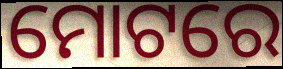
ମୋଟରେ